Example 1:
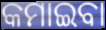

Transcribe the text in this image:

କମାଇବା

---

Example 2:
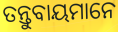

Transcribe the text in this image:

ତନ୍ତୁବାୟମାନେ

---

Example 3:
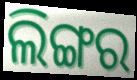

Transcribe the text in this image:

ଲିଙ୍ଗର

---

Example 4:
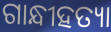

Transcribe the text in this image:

ଗାନ୍ଧୀହତ୍ୟା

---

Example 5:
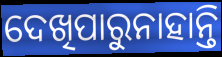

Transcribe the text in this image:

ଦେଖିପାରୁନାହାନ୍ତି